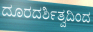
ದೂರದರ್ಶಿತ್ವದಿಂದ